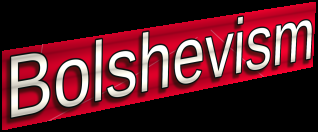
Bolshevism